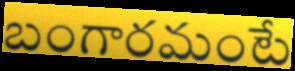
బంగారమంటే